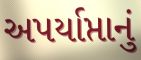
અપર્યાપ્તાનું